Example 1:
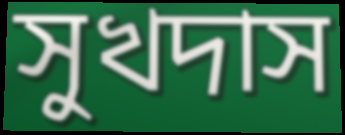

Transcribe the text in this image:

সুখদাস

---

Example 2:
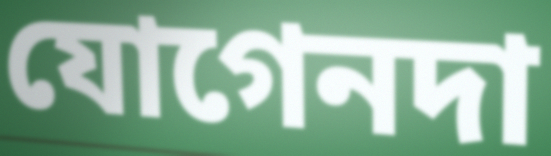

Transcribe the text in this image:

যোগেনদা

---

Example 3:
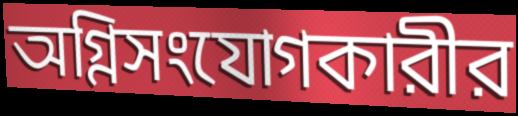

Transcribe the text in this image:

অগ্নিসংযোগকারীর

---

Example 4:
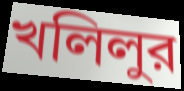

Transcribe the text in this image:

খলিলুর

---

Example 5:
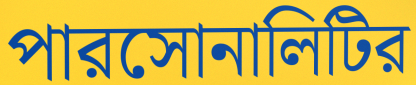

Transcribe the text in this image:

পারসোনালিটির